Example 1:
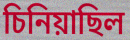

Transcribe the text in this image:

চিনিয়াছিল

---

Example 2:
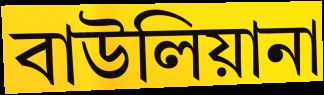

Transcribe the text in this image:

বাউলিয়ানা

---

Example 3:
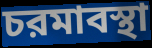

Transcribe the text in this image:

চরমাবস্থা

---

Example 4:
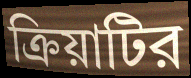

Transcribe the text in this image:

ক্রিয়াটির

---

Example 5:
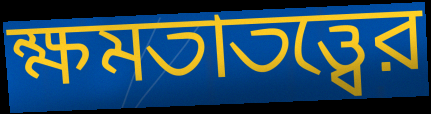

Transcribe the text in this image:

ক্ষমতাতত্ত্বের